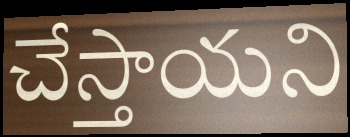
చేస్తాయని